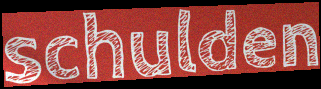
schulden